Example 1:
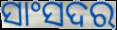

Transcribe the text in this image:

ସାଂସଦର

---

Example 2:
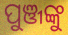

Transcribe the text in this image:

ପୁଞ୍ଜଙ୍କୁ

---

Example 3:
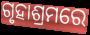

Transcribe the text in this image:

ଗୃହାଶ୍ରମରେ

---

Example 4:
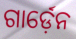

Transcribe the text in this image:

ଗାର୍ଡ଼େନ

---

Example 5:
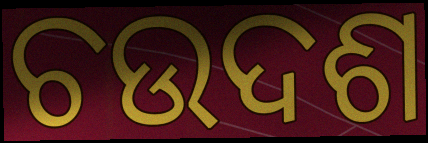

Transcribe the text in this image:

ଚଉଦଶ